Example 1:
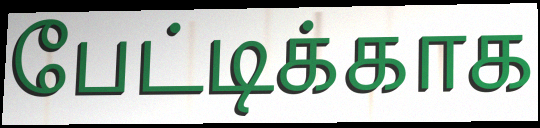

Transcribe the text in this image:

பேட்டிக்காக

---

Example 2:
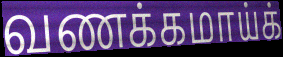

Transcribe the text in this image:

வணக்கமாய்க்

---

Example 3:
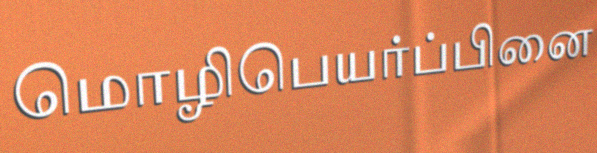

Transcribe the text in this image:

மொழிபெயர்ப்பினை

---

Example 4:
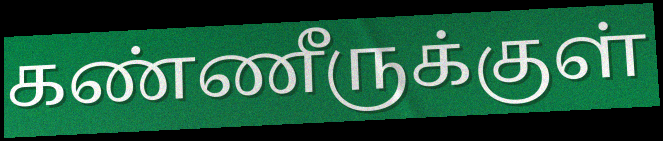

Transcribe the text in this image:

கண்ணீருக்குள்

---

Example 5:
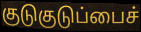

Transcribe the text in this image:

குடுகுடுப்பைச்